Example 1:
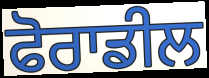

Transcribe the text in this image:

ਫੋਰਾਡੀਲ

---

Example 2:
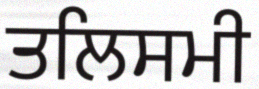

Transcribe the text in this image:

ਤਲਿਸਮੀ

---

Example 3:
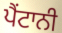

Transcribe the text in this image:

ਪੈਂਟਾਨੀ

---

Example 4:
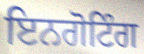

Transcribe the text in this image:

ਇਨਗੋਟਿੰਗ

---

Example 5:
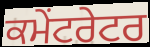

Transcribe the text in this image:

ਕਮੇਂਟਰੇਟਰ